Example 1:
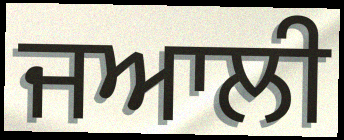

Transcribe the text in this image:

ਜਆਲੀ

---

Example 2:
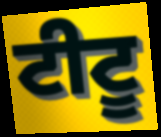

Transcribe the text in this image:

ਟੀਟੂ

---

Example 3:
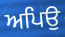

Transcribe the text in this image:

ਅਪਿਉ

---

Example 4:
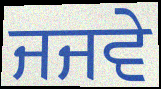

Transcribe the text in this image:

ਜਜਵੇ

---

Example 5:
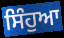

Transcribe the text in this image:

ਸਿੰਹੁਆ